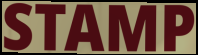
STAMP